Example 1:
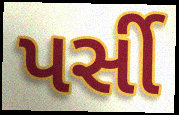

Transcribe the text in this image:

પર્સી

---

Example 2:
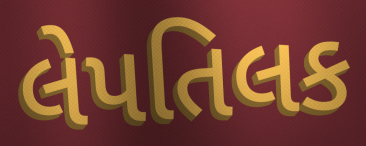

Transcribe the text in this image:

લેપતિલક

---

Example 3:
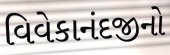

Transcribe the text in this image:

વિવેકાનંદજીનો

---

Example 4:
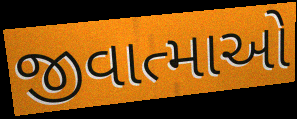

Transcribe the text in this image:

જીવાત્માઓ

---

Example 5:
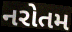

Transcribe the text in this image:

નરોતમ